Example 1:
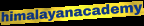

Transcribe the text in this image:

himalayanacademy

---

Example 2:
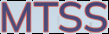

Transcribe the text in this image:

MTSS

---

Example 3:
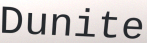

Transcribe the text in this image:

Dunite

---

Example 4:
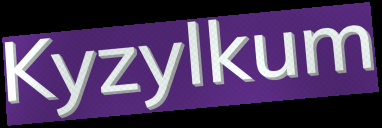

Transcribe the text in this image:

Kyzylkum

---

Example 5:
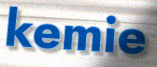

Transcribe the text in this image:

kemie